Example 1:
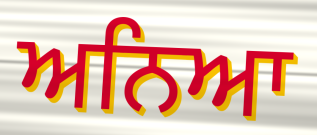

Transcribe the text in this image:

ਅਨਿਆ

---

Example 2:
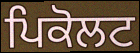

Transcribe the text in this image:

ਪਿਕੋਲਟ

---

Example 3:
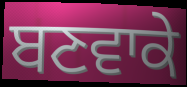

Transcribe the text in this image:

ਬਣਵਾਕੇ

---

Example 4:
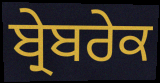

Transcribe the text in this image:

ਬ੍ਰੇਬਰੇਕ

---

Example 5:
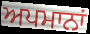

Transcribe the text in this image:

ਅਪਮਾਨਾਂ